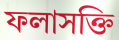
ফলাসক্তি